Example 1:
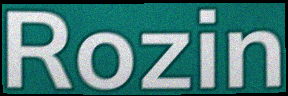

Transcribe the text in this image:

Rozin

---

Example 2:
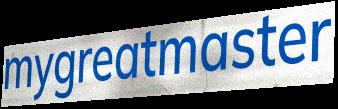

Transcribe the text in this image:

mygreatmaster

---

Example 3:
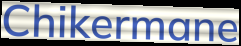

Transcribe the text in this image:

Chikermane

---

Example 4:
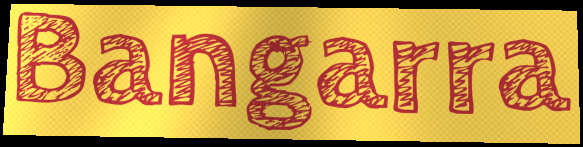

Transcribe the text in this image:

Bangarra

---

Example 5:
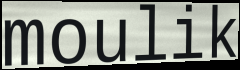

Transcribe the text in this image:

moulik